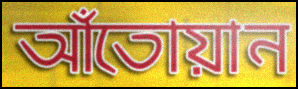
আঁতোয়ান